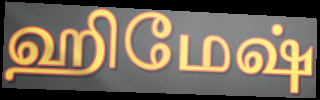
ஹிமேஷ்